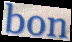
bon